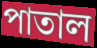
পাতাল